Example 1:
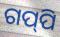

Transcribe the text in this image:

ଗପ୍‌ପି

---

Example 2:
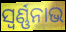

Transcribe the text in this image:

ସ୍ବର୍ଣ୍ଣନାଭ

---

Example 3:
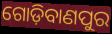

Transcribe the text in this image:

ଗୋଡ଼ିବାଣପୁର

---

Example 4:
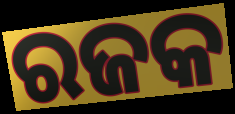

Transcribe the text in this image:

ରଜକ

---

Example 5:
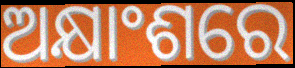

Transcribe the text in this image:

ଅକ୍ଷାଂଶରେ